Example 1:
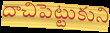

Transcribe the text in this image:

దాచిపెట్టుకుని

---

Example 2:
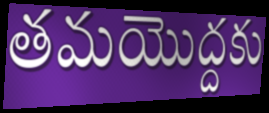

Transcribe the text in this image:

తమయొద్దకు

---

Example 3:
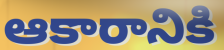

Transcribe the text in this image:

ఆకారానికి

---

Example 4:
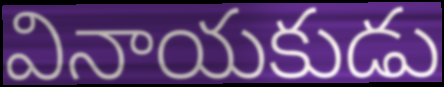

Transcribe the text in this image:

వినాయకుడు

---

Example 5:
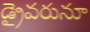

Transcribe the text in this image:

డ్రైవరునూ